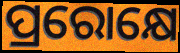
ପ୍ରରୋକ୍ଷେ